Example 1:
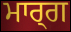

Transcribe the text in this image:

ਮਾਰ੍ਗ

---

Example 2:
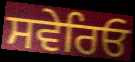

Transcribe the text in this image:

ਸਵੇਰਿਓ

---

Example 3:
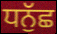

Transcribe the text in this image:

ਧਨੁੱਛ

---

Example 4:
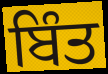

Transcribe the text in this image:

ਬਿੰਤ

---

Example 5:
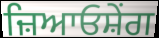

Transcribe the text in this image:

ਜ਼ਿਆਓਸ਼ੇਂਗ